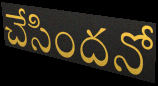
చేసిందనో